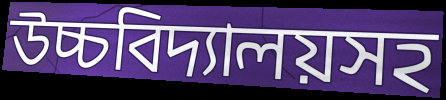
উচ্চবিদ্যালয়সহ